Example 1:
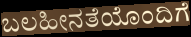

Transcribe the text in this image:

ಬಲಹೀನತೆಯೊಂದಿಗೆ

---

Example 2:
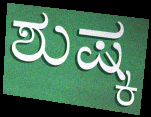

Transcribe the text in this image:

ಶುಷ್ಕ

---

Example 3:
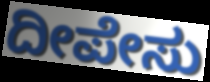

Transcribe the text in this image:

ದೀಪೇಸು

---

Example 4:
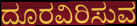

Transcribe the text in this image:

ದೂರವಿರಿಸುವ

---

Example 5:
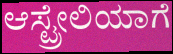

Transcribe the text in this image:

ಆಸ್ಟ್ರೇಲಿಯಾಗೆ